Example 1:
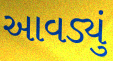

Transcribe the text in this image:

આવડ્યું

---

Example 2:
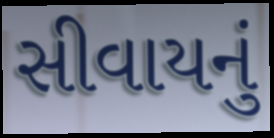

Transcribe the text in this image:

સીવાયનું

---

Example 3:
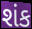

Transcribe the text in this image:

શંક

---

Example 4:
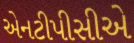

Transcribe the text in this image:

એનટીપીસીએ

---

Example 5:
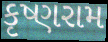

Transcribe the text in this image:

કૃષ્ણરામ